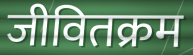
जीवितक्रम